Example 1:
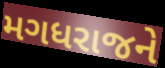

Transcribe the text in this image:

મગધરાજને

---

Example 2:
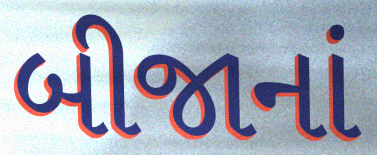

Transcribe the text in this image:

બીજાનાં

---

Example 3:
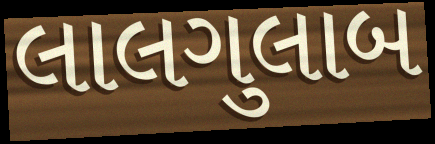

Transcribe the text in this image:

લાલગુલાબ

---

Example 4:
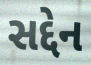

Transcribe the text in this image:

સદ્દેન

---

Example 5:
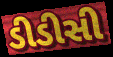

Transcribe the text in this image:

ડીડીસી